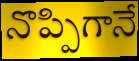
నొప్పిగానే